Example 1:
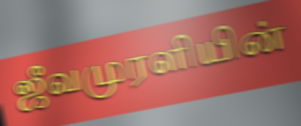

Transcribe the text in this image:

ஜீவமுரளியின்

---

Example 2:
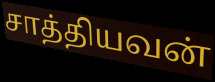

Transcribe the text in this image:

சாத்தியவன்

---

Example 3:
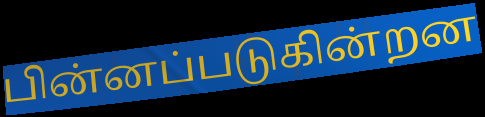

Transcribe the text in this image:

பின்னப்படுகின்றன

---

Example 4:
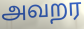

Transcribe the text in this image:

அவறர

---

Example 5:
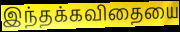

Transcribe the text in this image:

இந்தக்கவிதையை